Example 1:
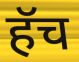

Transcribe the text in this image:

हॅच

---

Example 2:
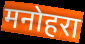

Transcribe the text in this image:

मनोहरा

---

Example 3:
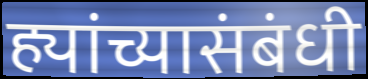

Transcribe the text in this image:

ह्यांच्यासंबंधी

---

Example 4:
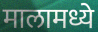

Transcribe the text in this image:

मालामध्ये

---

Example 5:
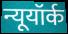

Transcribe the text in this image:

न्यूयॉर्क